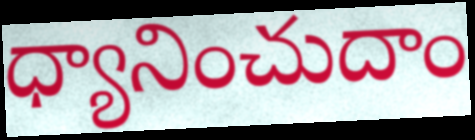
ధ్యానించుదాం